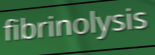
fibrinolysis